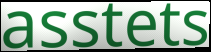
asstets